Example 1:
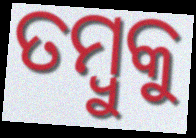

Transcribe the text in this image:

ତମ୍ବୁକୁ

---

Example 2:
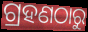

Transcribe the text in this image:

ଗ୍ରହଣଠାରୁ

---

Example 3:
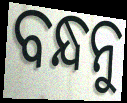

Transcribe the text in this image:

ବନ୍ଧନୁ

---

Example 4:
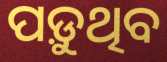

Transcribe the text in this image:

ପଡ଼ୁଥିବ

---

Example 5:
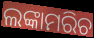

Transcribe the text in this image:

ଲଙ୍କାମରିଚ